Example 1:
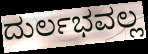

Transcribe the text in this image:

ದುರ್ಲಭವಲ್ಲ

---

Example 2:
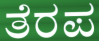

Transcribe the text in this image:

ತೆರಪ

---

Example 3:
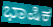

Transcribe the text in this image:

ಭಾಷಿಕ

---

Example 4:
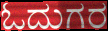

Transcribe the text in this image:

ಓದುಗರ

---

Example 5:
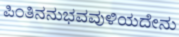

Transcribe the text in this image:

ಪಿಂತಿನನುಭವವುಳಿಯದೇನು